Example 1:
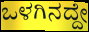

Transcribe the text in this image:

ಒಳಗಿನದ್ದೇ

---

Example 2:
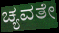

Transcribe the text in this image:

ಚ್ಯವತೇ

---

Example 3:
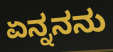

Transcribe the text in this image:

ಏನ್ನನನು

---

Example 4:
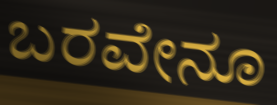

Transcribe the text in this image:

ಬರವೇನೂ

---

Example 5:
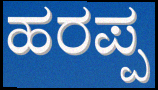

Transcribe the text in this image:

ಹರಪ್ಪ